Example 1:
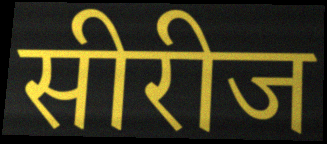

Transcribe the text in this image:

सीरीज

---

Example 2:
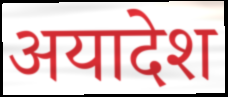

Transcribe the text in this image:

अयादेश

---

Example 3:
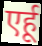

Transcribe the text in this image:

एर्हू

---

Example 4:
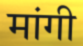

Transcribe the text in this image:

मांगी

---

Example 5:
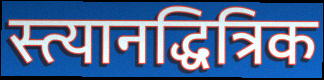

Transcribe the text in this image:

स्त्यानद्धित्रिक